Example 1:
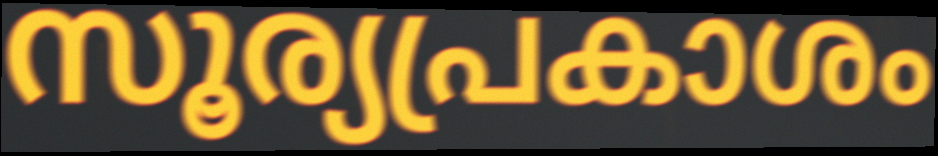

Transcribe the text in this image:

സൂര്യപ്രകാശം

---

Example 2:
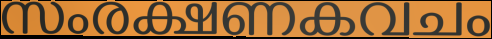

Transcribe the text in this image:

സംരക്ഷണകവചം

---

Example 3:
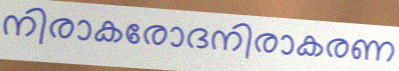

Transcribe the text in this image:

നിരാകരോദനിരാകരണ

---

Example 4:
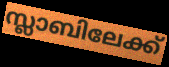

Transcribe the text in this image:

സ്ലാബിലേക്ക്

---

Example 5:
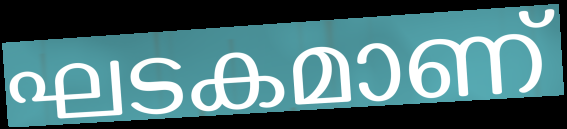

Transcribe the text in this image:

ഘടകമാണ്